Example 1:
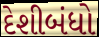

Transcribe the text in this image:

દેશીબંધો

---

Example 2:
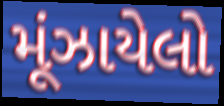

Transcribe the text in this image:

મૂંઝાયેલો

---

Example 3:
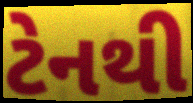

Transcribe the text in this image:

ટેનથી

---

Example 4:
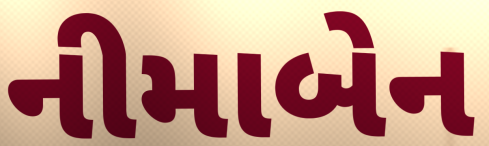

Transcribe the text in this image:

નીમાબેન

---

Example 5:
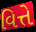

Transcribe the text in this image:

વિત્તે